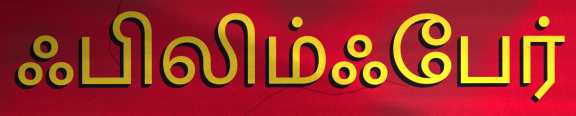
ஃபிலிம்ஃபேர்